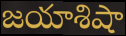
జయాశిషా